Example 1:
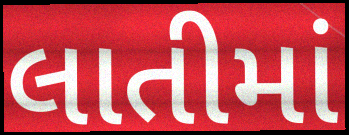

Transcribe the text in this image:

લાતીમાં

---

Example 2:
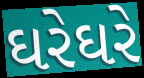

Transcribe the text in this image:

ઘરેઘરે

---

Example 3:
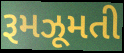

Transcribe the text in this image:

રૂમઝૂમતી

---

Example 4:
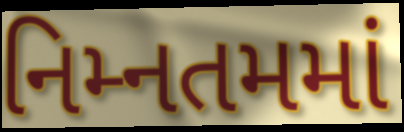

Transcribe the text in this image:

નિમ્નતમમાં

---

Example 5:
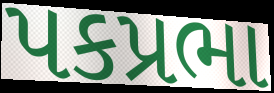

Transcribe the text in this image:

પકપ્રભા